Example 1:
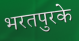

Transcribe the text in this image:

भरतपुरके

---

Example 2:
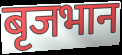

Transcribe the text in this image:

बृजभान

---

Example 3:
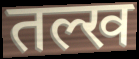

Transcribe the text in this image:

तल्‍ख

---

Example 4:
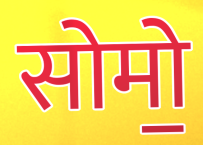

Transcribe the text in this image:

सोमो॒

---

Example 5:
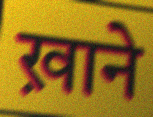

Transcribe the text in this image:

ख़ाने